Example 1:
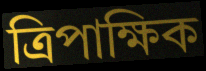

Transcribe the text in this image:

ত্রিপাক্ষিক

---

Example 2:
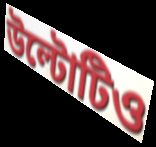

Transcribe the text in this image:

উল্টোটিও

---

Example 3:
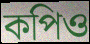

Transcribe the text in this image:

কপিও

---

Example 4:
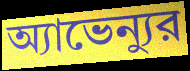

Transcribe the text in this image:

অ্যাভেন্যুর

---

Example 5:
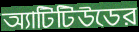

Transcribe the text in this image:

অ্যাটিটিউডের